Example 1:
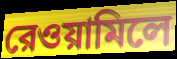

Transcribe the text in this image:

রেওয়ামিলে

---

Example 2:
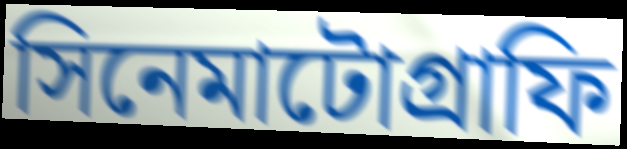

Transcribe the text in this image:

সিনেমাটোগ্রাফি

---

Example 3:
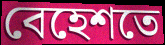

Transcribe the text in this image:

বেহেশতে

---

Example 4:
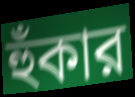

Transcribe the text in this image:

হুঁকার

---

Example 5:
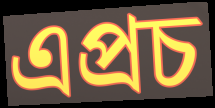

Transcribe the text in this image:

এপ্রচ